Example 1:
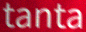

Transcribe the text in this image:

tanta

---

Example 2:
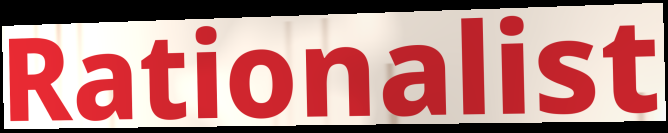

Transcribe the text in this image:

Rationalist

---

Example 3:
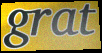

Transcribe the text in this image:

grat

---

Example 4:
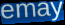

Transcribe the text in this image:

emay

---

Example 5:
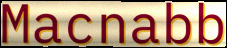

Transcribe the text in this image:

Macnabb